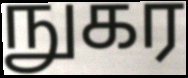
நுகர